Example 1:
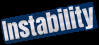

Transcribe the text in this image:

Instability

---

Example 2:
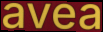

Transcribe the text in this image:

avea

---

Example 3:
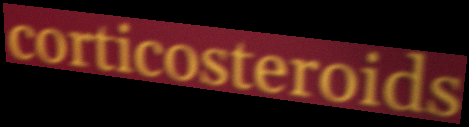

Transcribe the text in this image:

corticosteroids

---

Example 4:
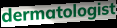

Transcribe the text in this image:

dermatologist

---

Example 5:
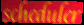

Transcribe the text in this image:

scheduler